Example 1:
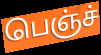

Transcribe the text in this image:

பெஞ்ச்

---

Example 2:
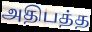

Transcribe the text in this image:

அதிபத்த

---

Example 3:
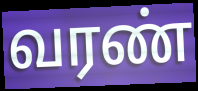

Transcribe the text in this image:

வரண்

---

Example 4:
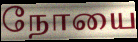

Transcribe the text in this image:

நோயை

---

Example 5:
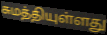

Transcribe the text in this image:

சுமத்தியுள்ளது